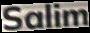
Salim